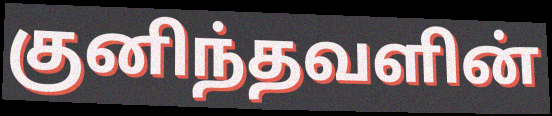
குனிந்தவளின்